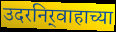
उदरनिर्वाहाच्या